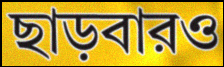
ছাড়বারও